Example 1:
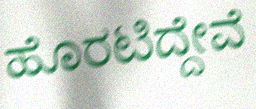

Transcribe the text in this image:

ಹೊರಟಿದ್ದೇವೆ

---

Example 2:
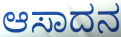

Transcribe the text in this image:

ಆಸಾದನ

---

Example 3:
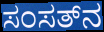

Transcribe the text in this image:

ಸಂಸತ್‌ನ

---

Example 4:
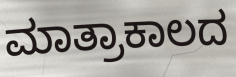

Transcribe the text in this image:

ಮಾತ್ರಾಕಾಲದ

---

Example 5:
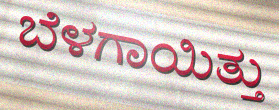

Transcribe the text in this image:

ಬೆಳಗಾಯಿತ್ತು